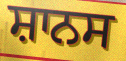
ਸ਼ਾਨਸ